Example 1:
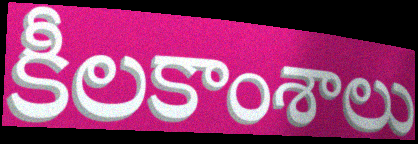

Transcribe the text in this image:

కీలకాంశాలు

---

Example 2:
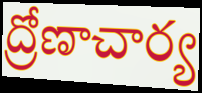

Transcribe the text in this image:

ద్రోణాచార్య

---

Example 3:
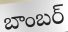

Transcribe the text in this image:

బాంబర్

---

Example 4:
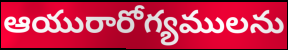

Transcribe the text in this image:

ఆయురారోగ్యములను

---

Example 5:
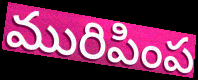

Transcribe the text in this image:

మురిపింప